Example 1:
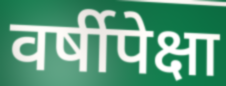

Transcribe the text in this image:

वर्षीपेक्षा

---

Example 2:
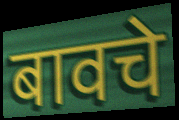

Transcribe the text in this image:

बावचे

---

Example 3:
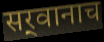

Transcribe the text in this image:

सर्वानाच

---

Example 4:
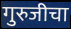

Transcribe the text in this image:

गुरुजीचा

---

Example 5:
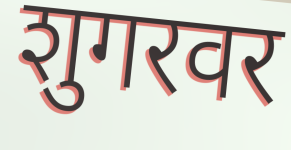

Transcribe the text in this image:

शुगरवर